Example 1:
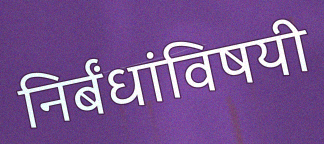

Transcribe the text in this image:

निर्बंधांविषयी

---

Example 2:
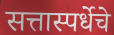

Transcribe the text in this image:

सत्तास्पर्धेचे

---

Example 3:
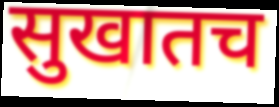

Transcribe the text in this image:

सुखातच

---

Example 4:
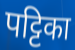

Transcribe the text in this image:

पट्टिका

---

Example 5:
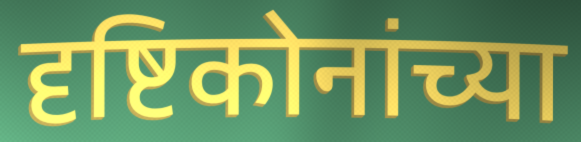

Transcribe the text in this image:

दृष्टिकोनांच्या